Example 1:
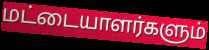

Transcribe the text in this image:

மட்டையாளர்களும்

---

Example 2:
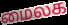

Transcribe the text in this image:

மைலக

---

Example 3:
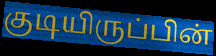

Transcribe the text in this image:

குடியிருப்பின்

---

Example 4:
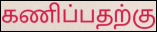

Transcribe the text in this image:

கணிப்பதற்கு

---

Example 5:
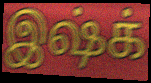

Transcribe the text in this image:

இஷ்க்